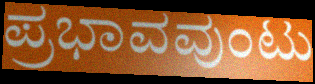
ಪ್ರಭಾವವುಂಟು